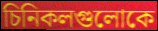
চিনিকলগুলোকে